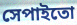
সেপাইতো